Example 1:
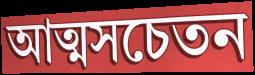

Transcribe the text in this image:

আত্মসচেতন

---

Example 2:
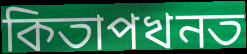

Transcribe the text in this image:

কিতাপখনত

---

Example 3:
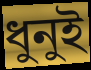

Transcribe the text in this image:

ধুনুই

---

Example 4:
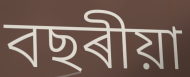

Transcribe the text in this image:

বছৰীয়া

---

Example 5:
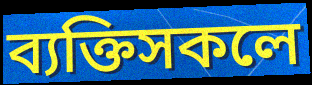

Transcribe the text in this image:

ব্যক্তিসকলে